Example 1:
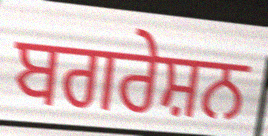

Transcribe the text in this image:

ਬਗਰੇਸ਼ਨ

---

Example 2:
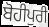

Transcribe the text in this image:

ਬੋਹੀਪੁਰੀ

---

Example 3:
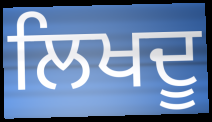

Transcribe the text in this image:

ਲਿਖਦੂ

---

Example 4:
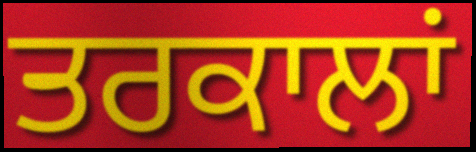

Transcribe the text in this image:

ਤਰਕਾਲਾਂ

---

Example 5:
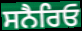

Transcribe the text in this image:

ਸਨੈਰਿਓ